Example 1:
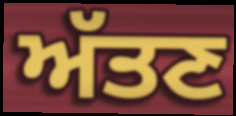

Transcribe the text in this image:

ਅੱਤਣ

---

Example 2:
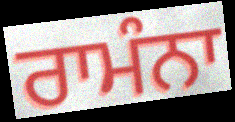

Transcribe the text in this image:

ਰਾਮੰਨਾ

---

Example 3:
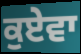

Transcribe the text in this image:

ਕੁਏਵਾ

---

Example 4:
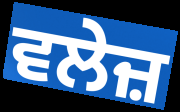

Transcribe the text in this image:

ਵਲੇਜ਼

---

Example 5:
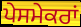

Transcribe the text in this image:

ਪੇਸਮੇਕਰਾਂ